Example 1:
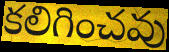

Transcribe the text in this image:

కలిగించవు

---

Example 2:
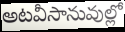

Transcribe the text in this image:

అటవీసానువుల్లో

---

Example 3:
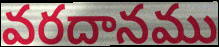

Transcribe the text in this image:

వరదానము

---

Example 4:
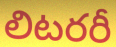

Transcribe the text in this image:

లిటరరీ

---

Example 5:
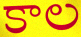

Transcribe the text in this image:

కాల